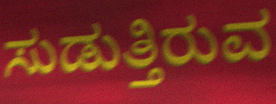
ಸುಡುತ್ತಿರುವ